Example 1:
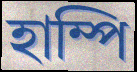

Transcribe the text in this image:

হাম্পি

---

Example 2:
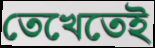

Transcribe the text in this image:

তেখেতেই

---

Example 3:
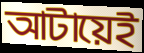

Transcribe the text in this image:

আটায়েই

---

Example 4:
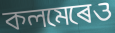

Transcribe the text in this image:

কলমেৰেও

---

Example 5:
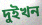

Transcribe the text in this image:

দুইখন